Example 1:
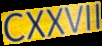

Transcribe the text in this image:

CXXVII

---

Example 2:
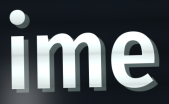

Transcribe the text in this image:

ime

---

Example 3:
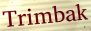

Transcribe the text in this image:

Trimbak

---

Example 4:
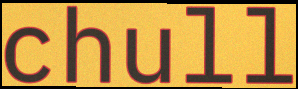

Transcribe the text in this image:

chull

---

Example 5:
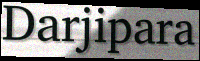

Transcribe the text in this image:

Darjipara